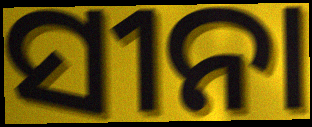
ସୀନା